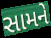
સામને